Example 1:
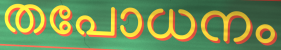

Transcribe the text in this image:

തപോധനം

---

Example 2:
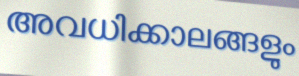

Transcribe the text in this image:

അവധിക്കാലങ്ങളും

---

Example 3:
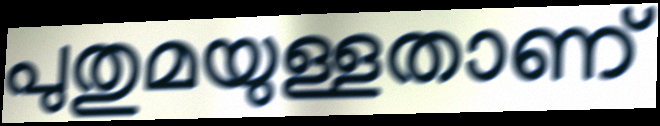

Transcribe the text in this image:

പുതുമയുള്ളതാണ്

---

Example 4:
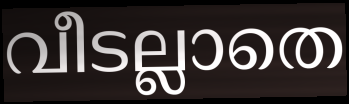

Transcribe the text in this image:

വീടല്ലാതെ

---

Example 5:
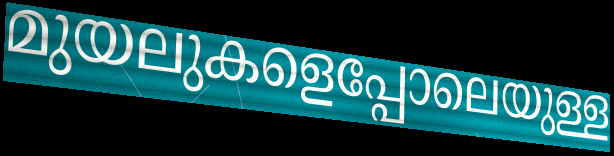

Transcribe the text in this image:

മുയലുകളെപ്പോലെയുള്ള